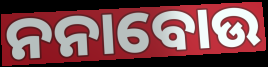
ନନାବୋଉ